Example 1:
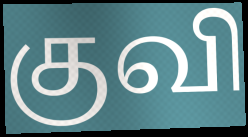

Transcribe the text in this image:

குவி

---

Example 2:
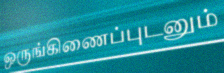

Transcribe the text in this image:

ஒருங்கிணைப்புடனும்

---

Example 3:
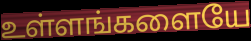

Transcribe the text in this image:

உள்ளங்களையே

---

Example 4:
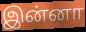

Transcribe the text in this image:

இன்னா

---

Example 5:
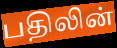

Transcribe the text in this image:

பதிலின்